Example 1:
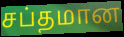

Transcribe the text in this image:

சப்தமான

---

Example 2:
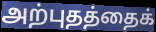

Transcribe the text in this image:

அற்புதத்தைக்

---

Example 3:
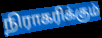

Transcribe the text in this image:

நிராகரிக்கும்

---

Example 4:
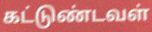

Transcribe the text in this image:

கட்டுண்டவள்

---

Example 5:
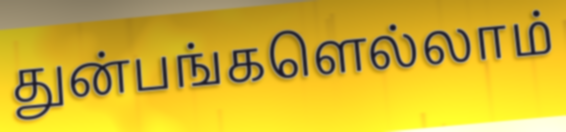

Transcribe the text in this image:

துன்பங்களெல்லாம்